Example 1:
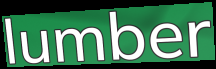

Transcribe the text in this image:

lumber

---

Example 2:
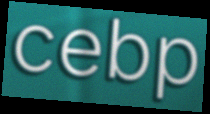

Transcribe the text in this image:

cebp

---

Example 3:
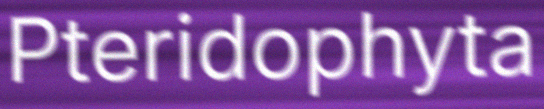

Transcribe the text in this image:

Pteridophyta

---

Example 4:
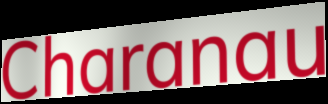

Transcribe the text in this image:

Charanau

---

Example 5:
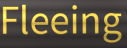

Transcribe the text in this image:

Fleeing